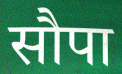
सौपा